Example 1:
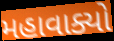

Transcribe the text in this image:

મહાવાક્યો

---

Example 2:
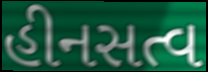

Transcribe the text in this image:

હીનસત્વ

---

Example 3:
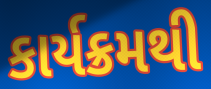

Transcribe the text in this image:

કાર્યક્રમથી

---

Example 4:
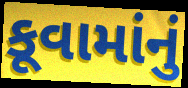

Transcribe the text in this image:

કૂવામાંનું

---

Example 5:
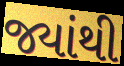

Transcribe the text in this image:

જ્યાંથી